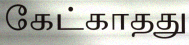
கேட்காதது